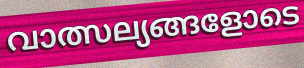
വാത്സല്യങ്ങളോടെ